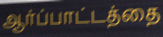
ஆர்ப்பாட்டத்தை